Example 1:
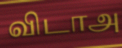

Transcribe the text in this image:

விடாஅ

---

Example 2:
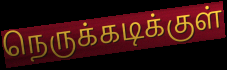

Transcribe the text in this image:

நெருக்கடிக்குள்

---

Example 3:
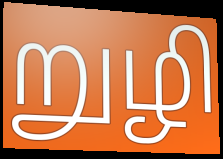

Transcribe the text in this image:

றுழி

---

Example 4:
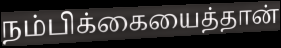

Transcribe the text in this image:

நம்பிக்கையைத்தான்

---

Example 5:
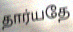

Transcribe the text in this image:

தார்யதே